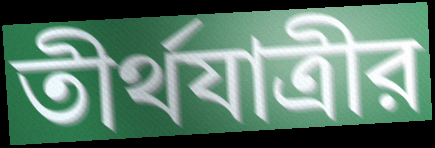
তীর্থযাত্রীর